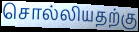
சொல்லியதற்கு